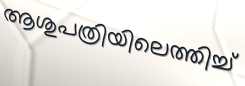
ആശുപത്രിയിലെത്തിച്ച്